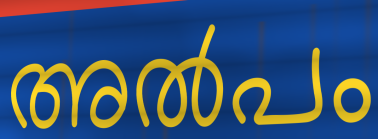
അൽപം